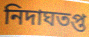
নিদাঘতপ্ত